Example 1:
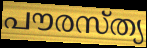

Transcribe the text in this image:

പൗരസ്ത്യ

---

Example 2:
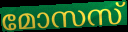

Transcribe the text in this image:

മോസസ്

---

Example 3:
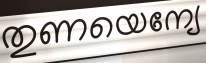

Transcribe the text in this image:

തുണയെന്യേ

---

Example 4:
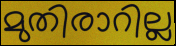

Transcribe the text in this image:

മുതിരാറില്ല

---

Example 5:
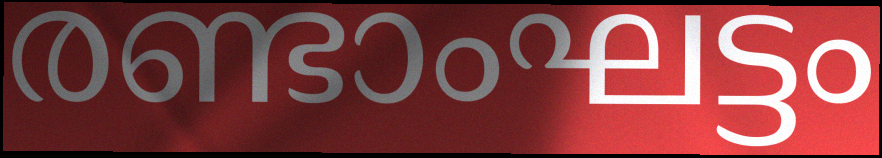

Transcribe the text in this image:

രണ്ടാംഘട്ടം